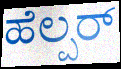
ಹೆಲ್ಪರ್